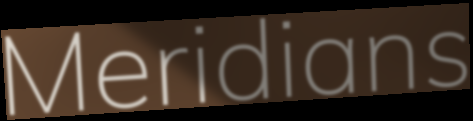
Meridians